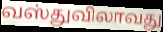
வஸ்துவிலாவது